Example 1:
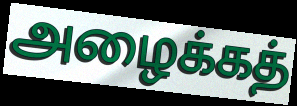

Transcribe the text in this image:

அழைக்கத்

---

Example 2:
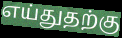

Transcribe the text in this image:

எய்துதற்கு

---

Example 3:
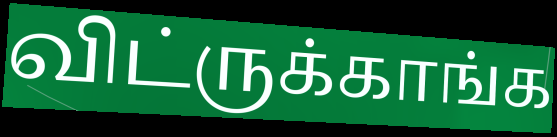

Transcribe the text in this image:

விட்ருக்காங்க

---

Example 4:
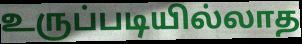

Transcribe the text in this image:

உருப்படியில்லாத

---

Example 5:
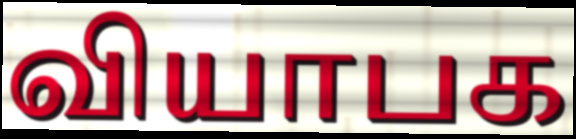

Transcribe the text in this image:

வியாபக